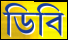
ডিবি